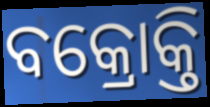
ବକ୍ରୋକ୍ତି